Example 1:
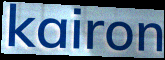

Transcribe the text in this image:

kairon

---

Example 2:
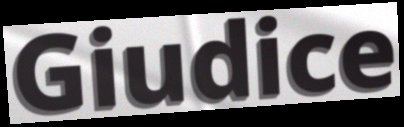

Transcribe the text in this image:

Giudice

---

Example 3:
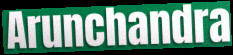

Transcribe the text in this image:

Arunchandra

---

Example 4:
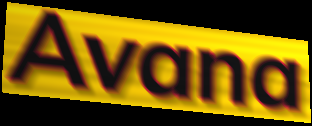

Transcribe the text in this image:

Avana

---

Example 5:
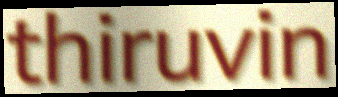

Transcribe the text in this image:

thiruvin